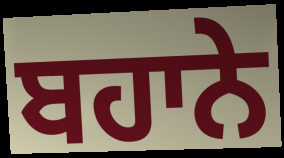
ਬਹਾਨੇ